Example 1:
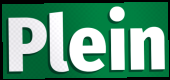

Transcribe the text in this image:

Plein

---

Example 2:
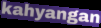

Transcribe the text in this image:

kahyangan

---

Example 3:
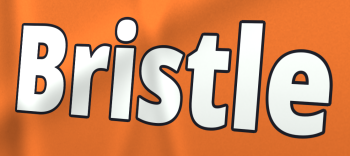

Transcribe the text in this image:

Bristle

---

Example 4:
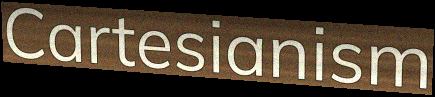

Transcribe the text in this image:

Cartesianism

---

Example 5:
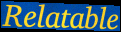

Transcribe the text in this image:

Relatable